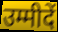
उम्मीदें